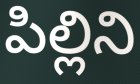
పిల్లిని